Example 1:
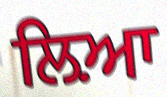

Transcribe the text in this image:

ਲ਼ਿਆ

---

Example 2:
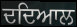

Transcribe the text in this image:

ਦਦਿਆਲ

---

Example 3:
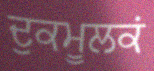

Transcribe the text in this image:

ਦੁਕਮੂਲਕਂ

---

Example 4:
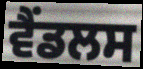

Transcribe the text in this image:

ਵੈਂਡਲਸ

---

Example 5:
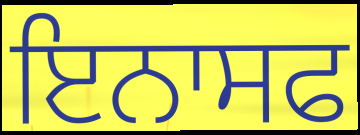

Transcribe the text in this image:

ਇਨਾਸਫ